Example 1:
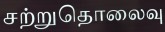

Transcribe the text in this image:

சற்றுதொலைவு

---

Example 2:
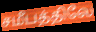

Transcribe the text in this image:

சமீபத்திலே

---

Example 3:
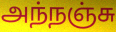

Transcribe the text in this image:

அந்நஞ்சு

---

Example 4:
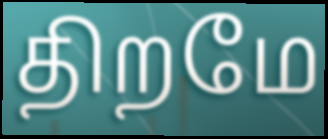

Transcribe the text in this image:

திறமே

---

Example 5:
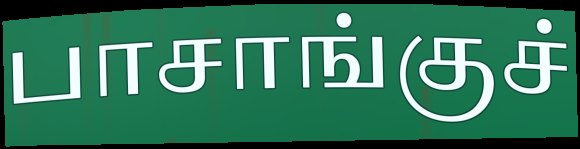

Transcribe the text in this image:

பாசாங்குச்